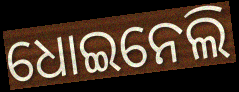
ଧୋଇନେଲି